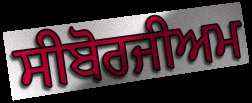
ਸੀਬੋਰਜੀਅਮ